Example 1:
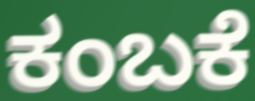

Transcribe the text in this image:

ಕಂಬಕೆ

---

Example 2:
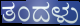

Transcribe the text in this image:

ತಂದಳು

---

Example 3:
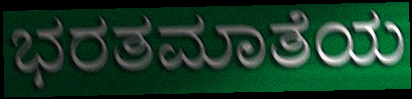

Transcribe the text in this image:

ಭರತಮಾತೆಯ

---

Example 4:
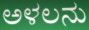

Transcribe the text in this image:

ಅಳಲನು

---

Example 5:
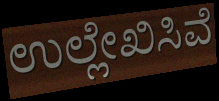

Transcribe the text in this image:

ಉಲ್ಲೇಖಿಸಿವೆ